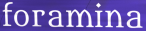
foramina